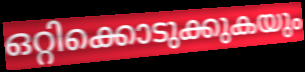
ഒറ്റിക്കൊടുക്കുകയും